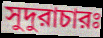
সুদুরাচারঃ